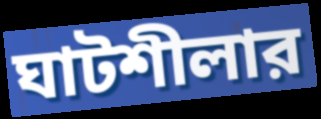
ঘাটশীলার